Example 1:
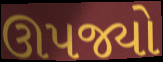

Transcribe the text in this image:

ઊપજ્યો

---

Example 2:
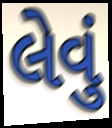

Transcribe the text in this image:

લેવું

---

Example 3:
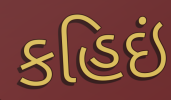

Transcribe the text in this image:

કહિઇં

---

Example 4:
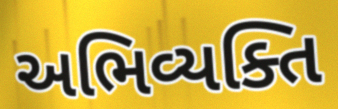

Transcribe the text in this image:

અભિવ્યક્તિ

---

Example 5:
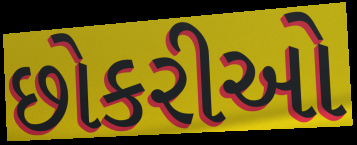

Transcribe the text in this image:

છોકરીઓ